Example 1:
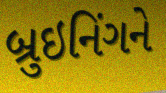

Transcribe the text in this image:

બ્રુઇનિંગને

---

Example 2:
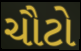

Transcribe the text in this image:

ચૌટો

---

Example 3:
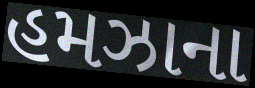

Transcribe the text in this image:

હમઝાના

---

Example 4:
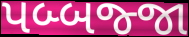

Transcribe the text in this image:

પબ્બજ્જા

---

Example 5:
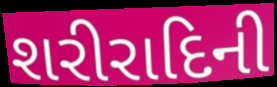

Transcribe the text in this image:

શરીરાદિની